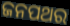
ଜନପଥର